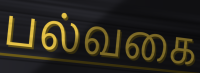
பல்வகை